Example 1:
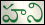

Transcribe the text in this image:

హని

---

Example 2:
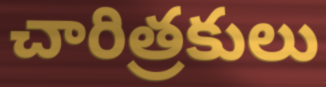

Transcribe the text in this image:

చారిత్రకులు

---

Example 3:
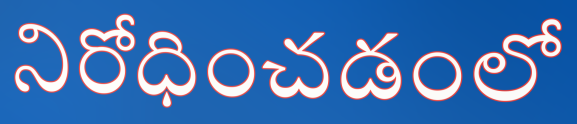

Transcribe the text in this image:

నిరోధించడంలో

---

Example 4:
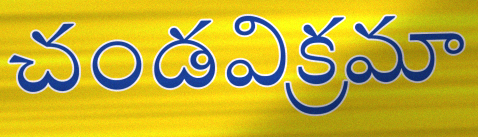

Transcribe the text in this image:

చండవిక్రమా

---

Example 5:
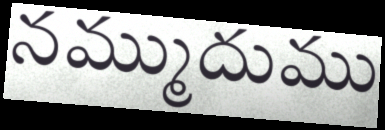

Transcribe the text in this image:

నమ్ముదుము